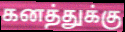
கனத்துக்கு